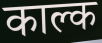
काल्क